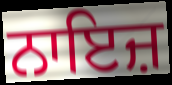
ਨਾਇਜ਼